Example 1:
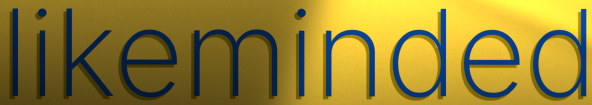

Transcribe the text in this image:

likeminded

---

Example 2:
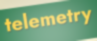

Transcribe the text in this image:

telemetry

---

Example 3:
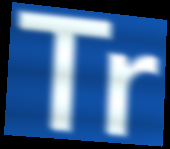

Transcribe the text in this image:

Tr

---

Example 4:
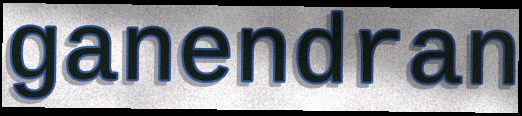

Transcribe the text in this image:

ganendran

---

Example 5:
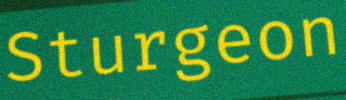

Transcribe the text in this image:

Sturgeon